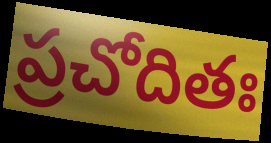
ప్రచోదితః